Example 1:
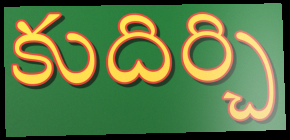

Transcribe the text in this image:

కుదిర్చి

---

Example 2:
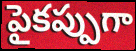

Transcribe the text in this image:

పైకప్పుగా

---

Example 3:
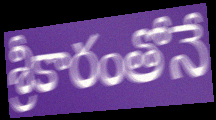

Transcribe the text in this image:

శ్రీకారంతోనే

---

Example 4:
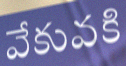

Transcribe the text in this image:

వేకువకి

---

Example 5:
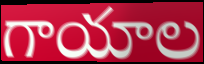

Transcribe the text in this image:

గాయాల